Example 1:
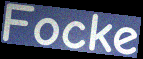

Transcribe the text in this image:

Focke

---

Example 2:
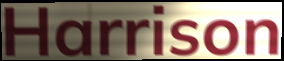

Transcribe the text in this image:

Harrison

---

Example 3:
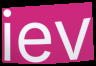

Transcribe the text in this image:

iev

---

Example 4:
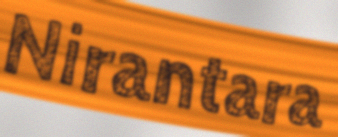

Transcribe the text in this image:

Nirantara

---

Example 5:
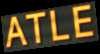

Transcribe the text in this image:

ATLE